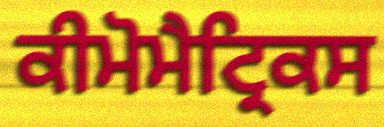
ਕੀਮੋਮੈਟ੍ਰਿਕਸ